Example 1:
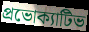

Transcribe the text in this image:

প্রভোক্যাটিভ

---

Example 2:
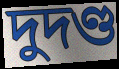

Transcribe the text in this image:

দুদণ্ড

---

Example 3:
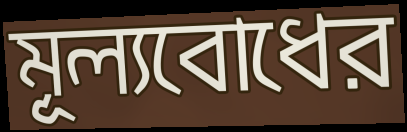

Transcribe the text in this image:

মূল্যবোধের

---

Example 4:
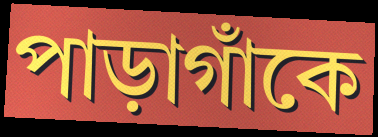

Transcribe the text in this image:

পাড়াগাঁকে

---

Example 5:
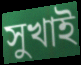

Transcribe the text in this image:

সুখাই